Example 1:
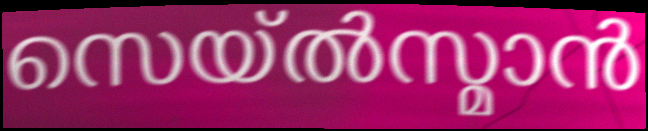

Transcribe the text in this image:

സെയ്ൽസ്മാൻ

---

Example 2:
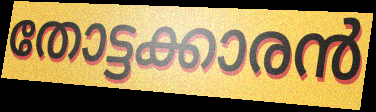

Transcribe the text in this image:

തോട്ടക്കാരൻ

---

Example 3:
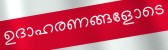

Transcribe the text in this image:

ഉദാഹരണങ്ങളോടെ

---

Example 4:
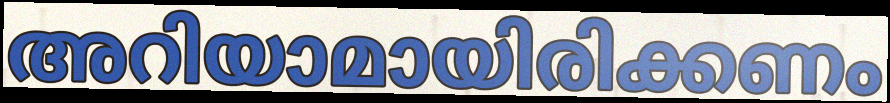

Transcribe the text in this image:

അറിയാമായിരിക്കണം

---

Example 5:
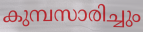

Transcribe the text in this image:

കുമ്പസാരിച്ചും